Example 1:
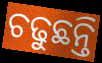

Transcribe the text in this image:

ଚଢୁଛନ୍ତି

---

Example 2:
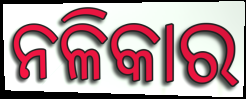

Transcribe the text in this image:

ନଳିକାର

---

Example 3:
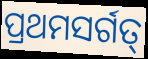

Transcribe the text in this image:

ପ୍ରଥମସର୍ଗତ୍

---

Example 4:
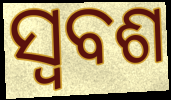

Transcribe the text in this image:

ସ୍ଵବଶ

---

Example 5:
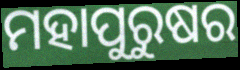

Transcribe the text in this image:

ମହାପୁରୁଷର